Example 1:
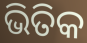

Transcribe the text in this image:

ଭିତିକ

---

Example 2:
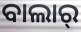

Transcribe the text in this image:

ବାଲାର୍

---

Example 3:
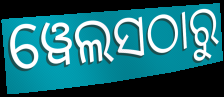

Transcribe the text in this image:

ୱେଲସଠାରୁ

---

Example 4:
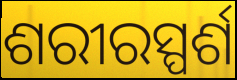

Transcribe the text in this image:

ଶରୀରସ୍ପର୍ଶ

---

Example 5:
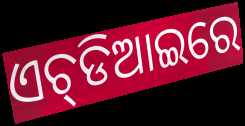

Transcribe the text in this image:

ଏଚ୍‌ଡିଆଇରେ